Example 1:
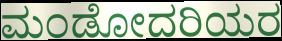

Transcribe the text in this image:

ಮಂಡೋದರಿಯರ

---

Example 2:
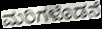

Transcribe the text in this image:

ಮರಿಗಳೊಡನೆ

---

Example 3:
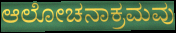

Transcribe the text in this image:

ಆಲೋಚನಾಕ್ರಮವು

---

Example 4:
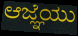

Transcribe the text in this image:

ಆಜ್ಞೆಯು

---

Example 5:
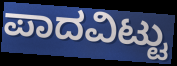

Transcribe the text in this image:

ಪಾದವಿಟ್ಟು